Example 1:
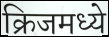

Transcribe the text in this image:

क्रिजमध्ये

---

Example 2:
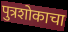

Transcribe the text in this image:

पुत्रशोकाचा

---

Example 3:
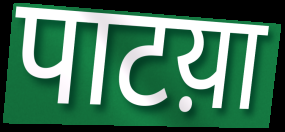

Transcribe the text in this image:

पाटय़ा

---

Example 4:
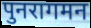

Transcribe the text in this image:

पुनरागमन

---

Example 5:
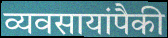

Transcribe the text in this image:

व्यवसायांपैकी